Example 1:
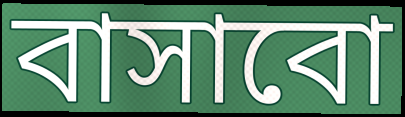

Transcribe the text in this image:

বাসাবো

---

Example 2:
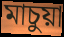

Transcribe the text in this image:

মাচুয়া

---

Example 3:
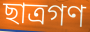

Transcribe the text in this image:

ছাত্রগণ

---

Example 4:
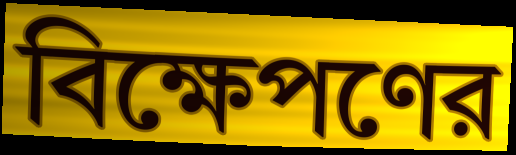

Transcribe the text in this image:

বিক্ষেপণের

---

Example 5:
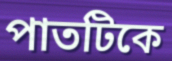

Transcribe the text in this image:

পাতটিকে